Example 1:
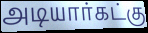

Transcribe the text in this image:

அடியார்கட்கு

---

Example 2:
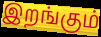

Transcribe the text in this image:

இறங்கும்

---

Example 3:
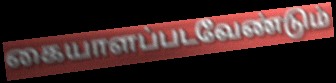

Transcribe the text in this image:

கையாளப்படவேண்டும்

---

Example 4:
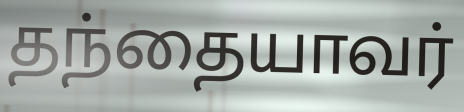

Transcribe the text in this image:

தந்தையாவர்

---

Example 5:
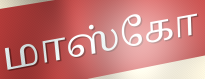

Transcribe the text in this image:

மாஸ்கோ